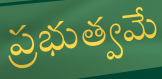
ప్రభుత్వమే